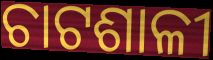
ଚାଟଶାଳୀ